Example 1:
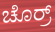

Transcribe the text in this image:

ಚೊರ್ರ್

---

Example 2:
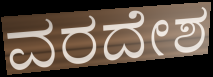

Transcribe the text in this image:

ವರದೇಶ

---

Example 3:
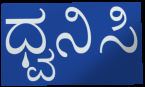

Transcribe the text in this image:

ಧ್ವನಿಸಿ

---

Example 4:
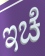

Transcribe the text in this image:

ಇಚೆ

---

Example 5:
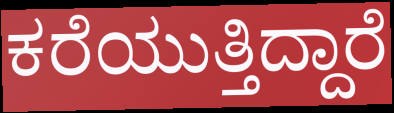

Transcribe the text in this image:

ಕರೆಯುತ್ತಿದ್ದಾರೆ